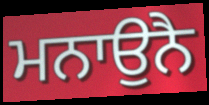
ਮਨਾਉਨੈ